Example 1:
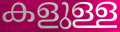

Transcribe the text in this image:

കളുള്ള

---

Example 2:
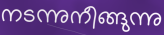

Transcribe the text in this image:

നടന്നുനീങ്ങുന്നു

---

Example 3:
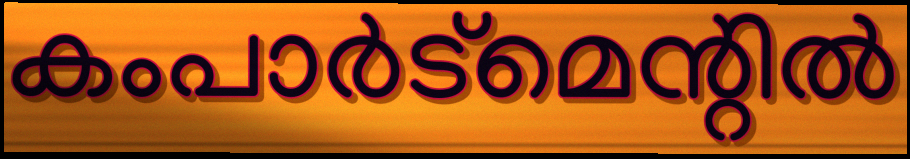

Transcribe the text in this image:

കംപാർട്മെന്റിൽ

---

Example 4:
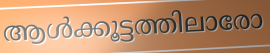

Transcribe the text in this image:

ആൾക്കൂട്ടത്തിലാരോ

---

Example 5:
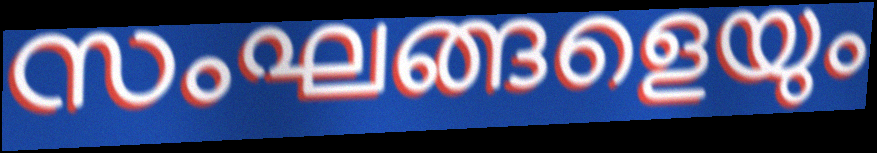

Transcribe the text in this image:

സംഘങ്ങളെയും